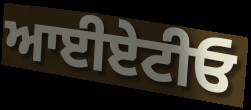
ਆਈਏਟੀਓ